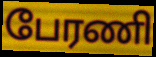
பேரணி